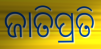
ଜାତିପ୍ରତି